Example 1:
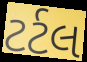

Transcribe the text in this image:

ટર્ટલ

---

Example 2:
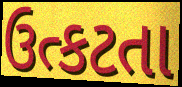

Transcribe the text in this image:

ઉત્કટતા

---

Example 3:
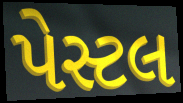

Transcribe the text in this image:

પેસ્ટલ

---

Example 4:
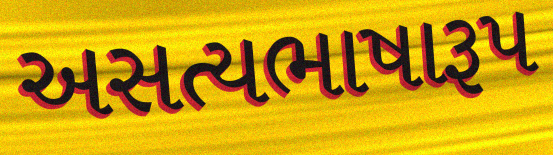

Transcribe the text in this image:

અસત્યભાષારૂપ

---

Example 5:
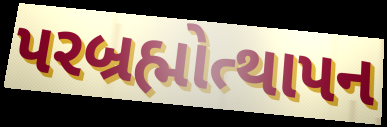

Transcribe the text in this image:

પરબ્રહ્મોત્થાપન